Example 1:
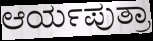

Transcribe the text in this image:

ಆರ್ಯಪುತ್ರಾ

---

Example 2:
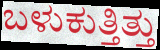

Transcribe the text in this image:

ಬಳುಕುತ್ತಿತ್ತು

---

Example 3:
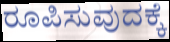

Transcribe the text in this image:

ರೂಪಿಸುವುದಕ್ಕೆ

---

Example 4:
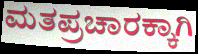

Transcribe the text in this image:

ಮತಪ್ರಚಾರಕ್ಕಾಗಿ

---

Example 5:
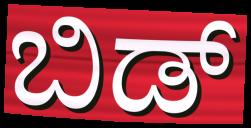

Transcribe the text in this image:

ಬಿಡ್